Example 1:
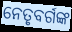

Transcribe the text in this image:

ନେତୃବର୍ଗଙ୍କ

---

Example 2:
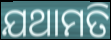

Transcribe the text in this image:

ଯଥାମତି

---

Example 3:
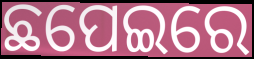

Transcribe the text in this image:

ଛପେଇରେ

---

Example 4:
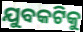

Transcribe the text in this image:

ଯୁବକଟିକୁ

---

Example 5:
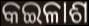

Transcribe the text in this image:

କଇଳାଶ